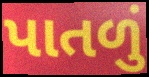
પાતળું